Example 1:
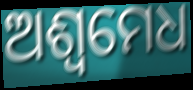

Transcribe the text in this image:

ଅଶ୍ୱମେଧ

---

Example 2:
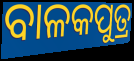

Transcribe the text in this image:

ବାଳକପୁତ୍ର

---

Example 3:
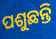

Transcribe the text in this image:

ପଶୁଛନ୍ତି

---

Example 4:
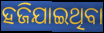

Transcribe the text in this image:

ହଜିଯାଇଥିବା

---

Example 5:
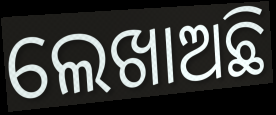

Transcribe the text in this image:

ଲେଖାଅଛି